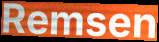
Remsen